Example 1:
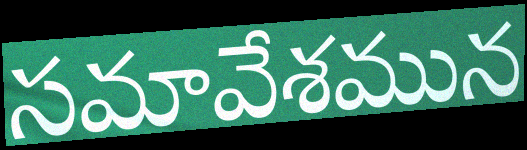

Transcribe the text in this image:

సమావేశమున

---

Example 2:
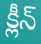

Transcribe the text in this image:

క్లీన్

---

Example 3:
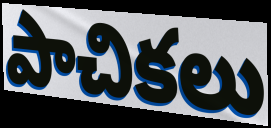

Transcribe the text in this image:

పాచికలు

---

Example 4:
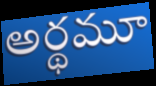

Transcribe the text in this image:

అర్థమూ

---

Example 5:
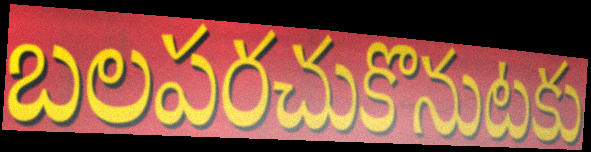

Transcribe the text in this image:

బలపరచుకొనుటకు